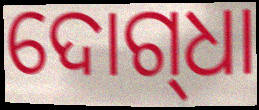
ଦୋଗ୍‌ଧା